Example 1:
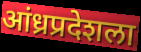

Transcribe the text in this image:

आंध्रप्रदेशला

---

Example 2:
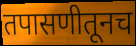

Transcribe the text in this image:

तपासणीतूनच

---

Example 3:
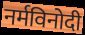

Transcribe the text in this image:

नर्मविनोदी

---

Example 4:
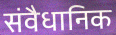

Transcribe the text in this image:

संवैधानिक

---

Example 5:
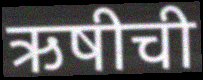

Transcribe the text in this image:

ऋषीची